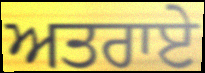
ਅਤਰਾਏ